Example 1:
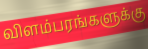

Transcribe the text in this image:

விளம்பரங்களுக்கு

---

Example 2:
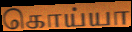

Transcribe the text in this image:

கொய்யா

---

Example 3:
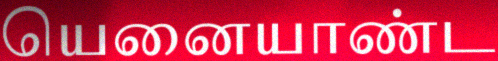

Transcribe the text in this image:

யெனையாண்ட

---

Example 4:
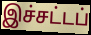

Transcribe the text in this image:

இச்சட்டப்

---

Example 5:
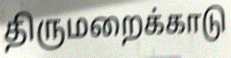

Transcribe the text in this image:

திருமறைக்காடு